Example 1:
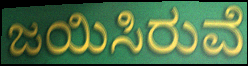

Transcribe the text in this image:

ಜಯಿಸಿರುವೆ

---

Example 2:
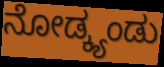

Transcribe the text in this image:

ನೋಡ್ಕ್ಯಂಡು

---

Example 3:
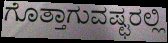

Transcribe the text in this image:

ಗೊತ್ತಾಗುವಷ್ಟರಲ್ಲಿ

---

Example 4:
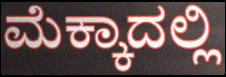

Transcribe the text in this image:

ಮೆಕ್ಕಾದಲ್ಲಿ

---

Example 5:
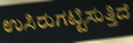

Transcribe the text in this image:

ಉಸಿರುಗಟ್ಟಿಸುತ್ತಿದೆ